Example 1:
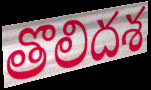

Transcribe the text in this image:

తొలిదశ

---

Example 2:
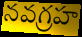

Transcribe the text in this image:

నవగ్రహ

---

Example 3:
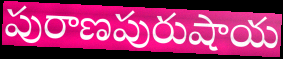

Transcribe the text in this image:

పురాణపురుషాయ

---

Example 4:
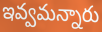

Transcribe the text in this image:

ఇవ్వమన్నారు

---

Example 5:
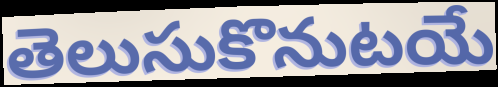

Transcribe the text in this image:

తెలుసుకొనుటయే